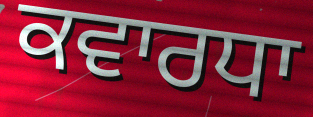
ਕਵਾਰਧਾ